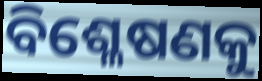
ବିଶ୍ଳେଷଣକୁ